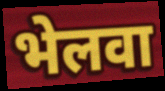
भेलवा